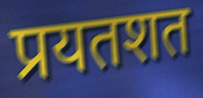
प्रयतशत